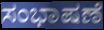
ಸಂಭಾಷಣೆ